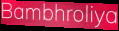
Bambhroliya